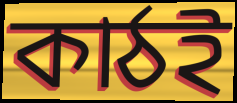
কাঠই